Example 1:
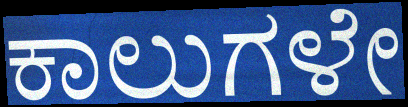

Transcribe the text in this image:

ಕಾಲುಗಳೇ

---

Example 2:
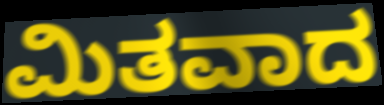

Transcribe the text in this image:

ಮಿತವಾದ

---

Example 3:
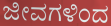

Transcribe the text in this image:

ಜೀವಗಳಿಂದ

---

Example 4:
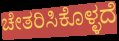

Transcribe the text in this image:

ಚೇತರಿಸಿಕೊಳ್ಳದೆ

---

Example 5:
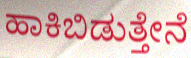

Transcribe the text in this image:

ಹಾಕಿಬಿಡುತ್ತೇನೆ